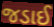
જડાઈ